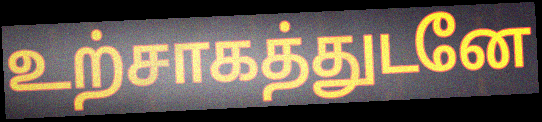
உற்சாகத்துடனே